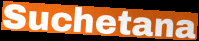
Suchetana